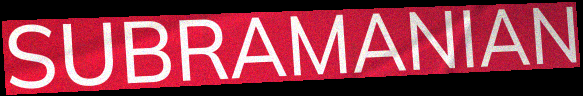
SUBRAMANIAN